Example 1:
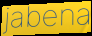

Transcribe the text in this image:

jabena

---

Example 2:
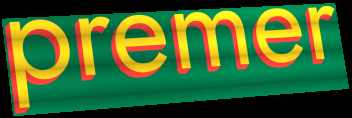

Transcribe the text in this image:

premer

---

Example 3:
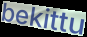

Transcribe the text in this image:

bekittu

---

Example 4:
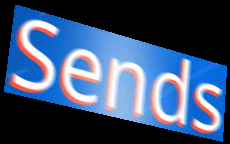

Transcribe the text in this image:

Sends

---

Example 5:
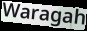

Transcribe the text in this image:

Waragah